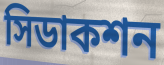
সিডাকশন